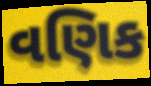
વણિક